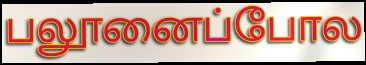
பலூனைப்போல